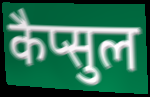
कैप्सुल